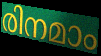
രിനമാം